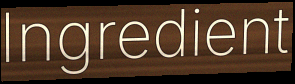
Ingredient